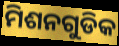
ମିଶନଗୁଡିକ